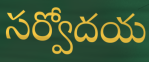
సర్వోదయ